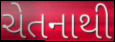
ચેતનાથી